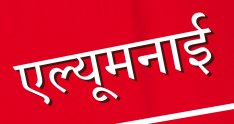
एल्यूमनाई